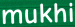
mukhi